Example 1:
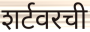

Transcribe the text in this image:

शर्टवरची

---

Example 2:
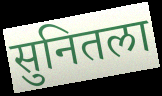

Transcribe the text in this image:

सुनितला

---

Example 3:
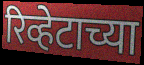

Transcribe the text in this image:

रिव्हेटाच्या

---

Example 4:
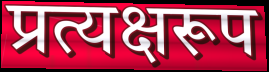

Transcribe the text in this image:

प्रत्यक्षरूप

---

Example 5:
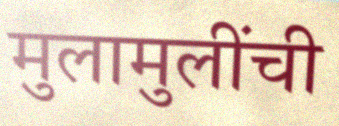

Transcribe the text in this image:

मुलामुलींची